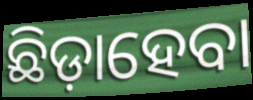
ଛିଡ଼ାହେବା